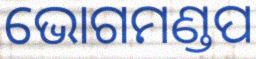
ଭୋଗମଣ୍ଡପ